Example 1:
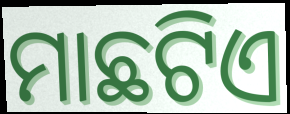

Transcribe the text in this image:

ମାଛଟିଏ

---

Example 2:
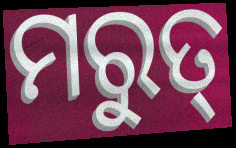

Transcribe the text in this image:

ମରୁତ୍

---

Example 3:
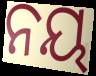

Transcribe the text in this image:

ନୟ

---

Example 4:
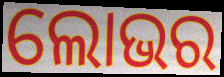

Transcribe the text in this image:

ଲୋଭର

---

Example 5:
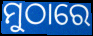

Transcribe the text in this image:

ମୁଠାରେ